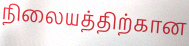
நிலையத்திற்கான